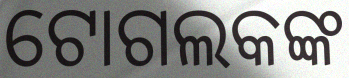
ଟୋଗଲକଙ୍କ